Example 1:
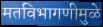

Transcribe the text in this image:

मतविभागणीमुळे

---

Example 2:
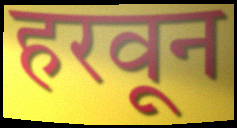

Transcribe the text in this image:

हरवून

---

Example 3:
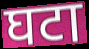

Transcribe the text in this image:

घटा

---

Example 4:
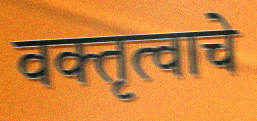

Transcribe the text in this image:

वक्तृत्वाचे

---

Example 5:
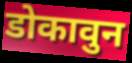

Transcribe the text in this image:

डोकावुन